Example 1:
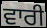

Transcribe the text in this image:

ਵਾਰੀ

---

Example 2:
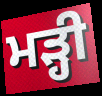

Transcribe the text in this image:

ਮੜ੍ਹੀ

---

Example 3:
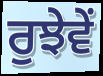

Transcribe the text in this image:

ਰੁਝੇਵੇਂ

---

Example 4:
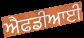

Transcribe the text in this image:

ਐਫਡੀਆਈ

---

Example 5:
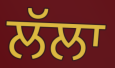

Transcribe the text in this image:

ਲੱਲਾ